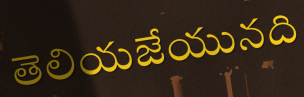
తెలియజేయునది